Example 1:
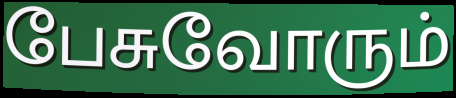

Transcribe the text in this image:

பேசுவோரும்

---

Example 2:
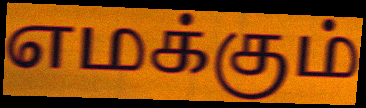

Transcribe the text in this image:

எமக்கும்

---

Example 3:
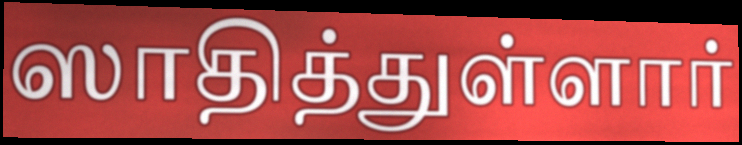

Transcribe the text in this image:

ஸாதித்துள்ளார்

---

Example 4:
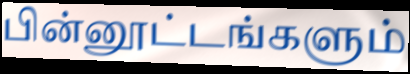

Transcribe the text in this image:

பின்னூட்டங்களும்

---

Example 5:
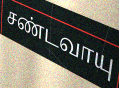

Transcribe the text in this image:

சண்டவாயு